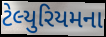
ટેલ્યુરિયમના